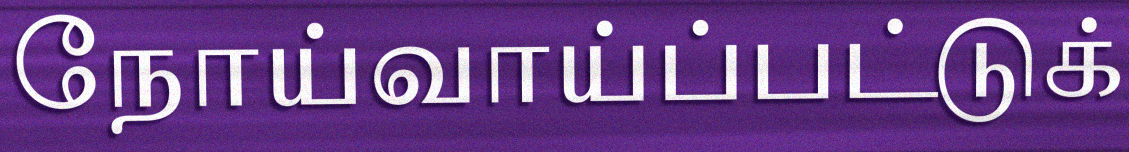
நோய்வாய்ப்பட்டுக்